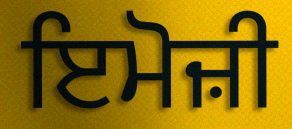
ਇਮੋਜ਼ੀ